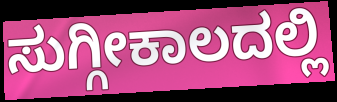
ಸುಗ್ಗೀಕಾಲದಲ್ಲಿ